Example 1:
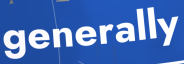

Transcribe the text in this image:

generally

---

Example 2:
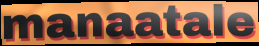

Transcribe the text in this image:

manaatale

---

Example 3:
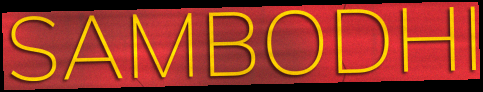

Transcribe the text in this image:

SAMBODHI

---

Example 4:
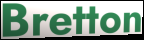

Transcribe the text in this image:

Bretton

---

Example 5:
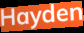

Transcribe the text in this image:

Hayden